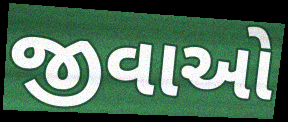
જીવાઓ